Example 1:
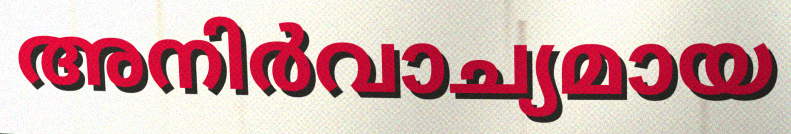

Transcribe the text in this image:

അനിർവാച്യമായ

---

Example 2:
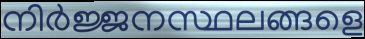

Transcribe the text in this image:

നിർജ്ജനസ്ഥലങ്ങളെ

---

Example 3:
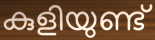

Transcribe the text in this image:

കുളിയുണ്ട്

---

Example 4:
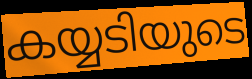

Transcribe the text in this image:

കയ്യടിയുടെ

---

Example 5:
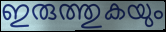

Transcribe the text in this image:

ഇരുത്തുകയും